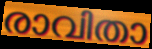
രാവിതാ